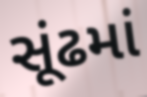
સૂંઢમાં